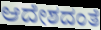
ಆದೇಶದಂತೆ